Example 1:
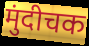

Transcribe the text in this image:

मुंदीचक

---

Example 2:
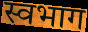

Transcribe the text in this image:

स्वभाग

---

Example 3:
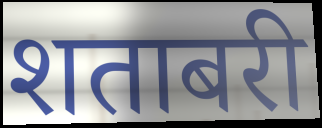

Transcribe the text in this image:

शताबरी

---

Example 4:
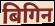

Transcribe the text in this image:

बिगिन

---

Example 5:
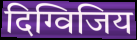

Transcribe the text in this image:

दिग्विजिय